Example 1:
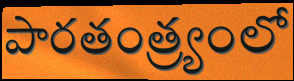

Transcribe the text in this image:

పారతంత్ర్యంలో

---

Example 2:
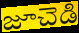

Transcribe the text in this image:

జూచెడి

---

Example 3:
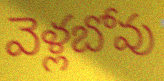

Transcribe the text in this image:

వెళ్లబోవు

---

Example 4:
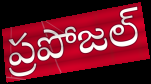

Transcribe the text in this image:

ప్రపోజల్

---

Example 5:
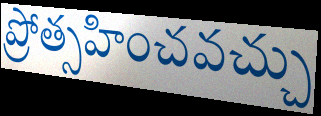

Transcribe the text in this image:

ప్రోత్సహించవచ్చు